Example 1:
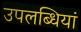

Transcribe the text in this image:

उपलब्धियां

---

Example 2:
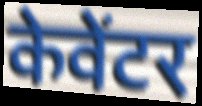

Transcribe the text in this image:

केवेंटर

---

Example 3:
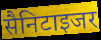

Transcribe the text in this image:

सैनिटाइजर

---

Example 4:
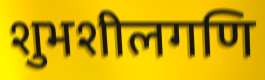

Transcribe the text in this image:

शुभशीलगणि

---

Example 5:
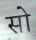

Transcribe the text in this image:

सो